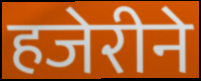
हजेरीने